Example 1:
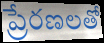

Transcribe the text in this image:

ప్రేరణలతో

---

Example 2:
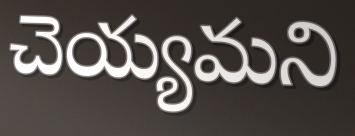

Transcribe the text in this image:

చెయ్యమని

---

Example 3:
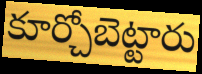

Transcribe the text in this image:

కూర్చోబెట్టారు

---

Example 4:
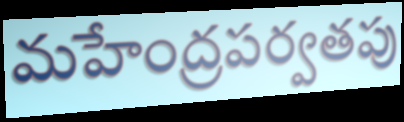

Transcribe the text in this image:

మహేంద్రపర్వతపు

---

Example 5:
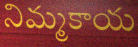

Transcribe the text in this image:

నిమ్మకాయ